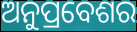
ଅନୁପ୍ରବେଶର